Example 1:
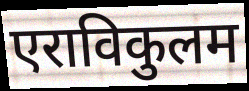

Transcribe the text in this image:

एराविकुलम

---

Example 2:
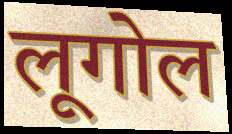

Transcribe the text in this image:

लूगोल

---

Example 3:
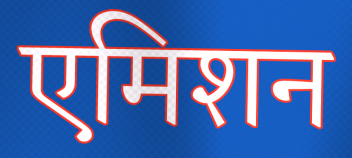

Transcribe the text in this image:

एमिशन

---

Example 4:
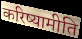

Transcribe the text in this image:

करिष्यामीति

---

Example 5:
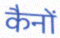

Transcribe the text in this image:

कैनों